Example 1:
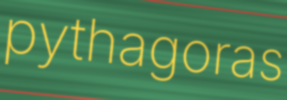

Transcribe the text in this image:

pythagoras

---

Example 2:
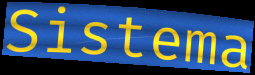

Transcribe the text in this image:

Sistema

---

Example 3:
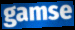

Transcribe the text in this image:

gamse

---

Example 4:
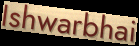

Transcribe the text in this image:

Ishwarbhai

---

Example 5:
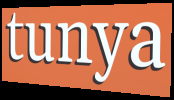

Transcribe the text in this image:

tunya